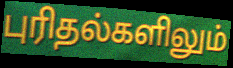
புரிதல்களிலும்